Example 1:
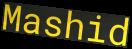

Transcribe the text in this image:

Mashid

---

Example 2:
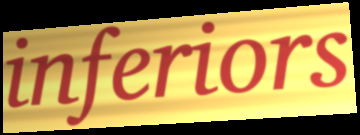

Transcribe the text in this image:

inferiors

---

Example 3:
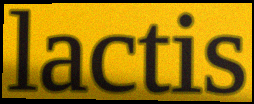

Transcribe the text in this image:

lactis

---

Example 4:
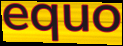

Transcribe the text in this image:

equo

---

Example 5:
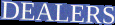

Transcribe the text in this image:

DEALERS